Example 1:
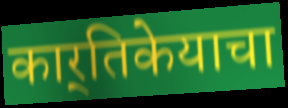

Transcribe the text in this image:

कार्तिकेयाचा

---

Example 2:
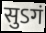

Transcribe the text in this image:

सुऽगं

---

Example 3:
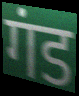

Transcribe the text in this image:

गंड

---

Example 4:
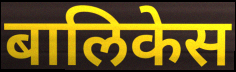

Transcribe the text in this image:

बालिकेस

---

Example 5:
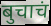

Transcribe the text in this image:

बुचाचं